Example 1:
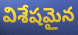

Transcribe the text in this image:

విశేషమైన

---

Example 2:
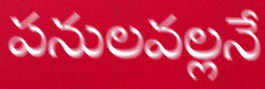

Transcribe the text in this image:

పనులవల్లనే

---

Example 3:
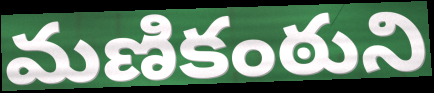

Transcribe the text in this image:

మణికంఠుని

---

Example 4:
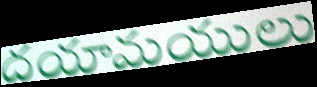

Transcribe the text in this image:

దయామయులు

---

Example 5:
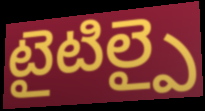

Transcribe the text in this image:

టైటిల్పై